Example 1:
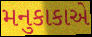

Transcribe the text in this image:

મનુકાકાએ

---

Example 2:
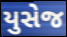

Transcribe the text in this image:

યુસેજ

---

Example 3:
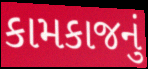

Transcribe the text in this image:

કામકાજનું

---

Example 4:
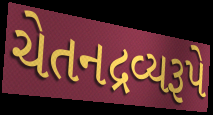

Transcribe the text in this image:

ચેતનદ્રવ્યરૂપે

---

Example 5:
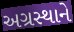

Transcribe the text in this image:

અગ્રસ્થાને